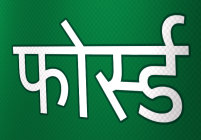
फोर्स्ड